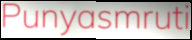
Punyasmruti